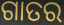
ଗାତର